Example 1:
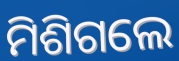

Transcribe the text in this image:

ମିଶିଗଲେ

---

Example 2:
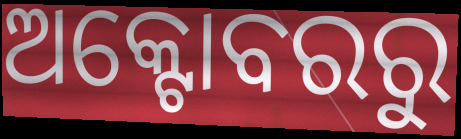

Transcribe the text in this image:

ଅକ୍ଟୋବରରୁ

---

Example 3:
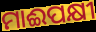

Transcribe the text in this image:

ମାଈପକ୍ଷୀ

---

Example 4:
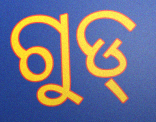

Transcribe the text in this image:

ଗୁଡ୍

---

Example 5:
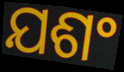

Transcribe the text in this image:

ଯଶଂ